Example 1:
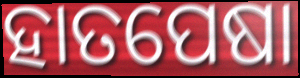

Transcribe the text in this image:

ହାତପେଷା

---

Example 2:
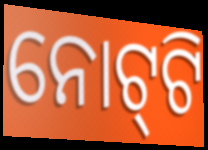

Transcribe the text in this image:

ନୋଟ୍‌ଟି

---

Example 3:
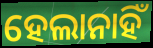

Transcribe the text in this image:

ହେଲାନାହିଁ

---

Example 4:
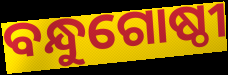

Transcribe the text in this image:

ବନ୍ଧୁଗୋଷ୍ଠୀ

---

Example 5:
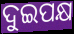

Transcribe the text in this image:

ଦୁଇପକ୍ଷ